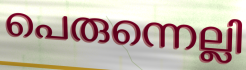
പെരുന്നെല്ലി